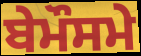
ਬੇਮੌਸਮੇ